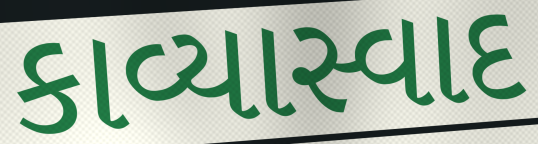
કાવ્યાસ્વાદ